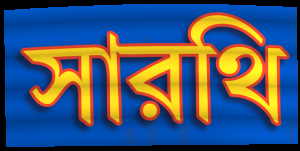
সারথি